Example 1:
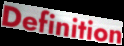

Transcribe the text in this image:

Definition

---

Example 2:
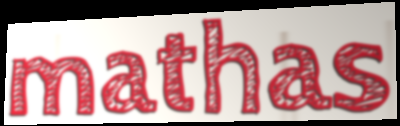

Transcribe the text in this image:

mathas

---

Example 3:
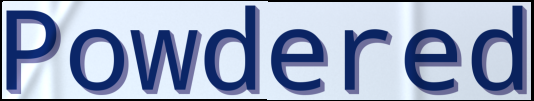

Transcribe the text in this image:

Powdered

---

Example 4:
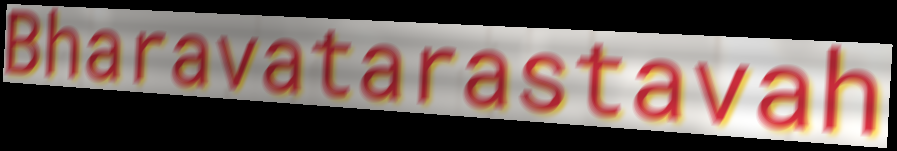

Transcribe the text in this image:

Bharavatarastavah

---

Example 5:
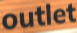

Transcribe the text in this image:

outlet